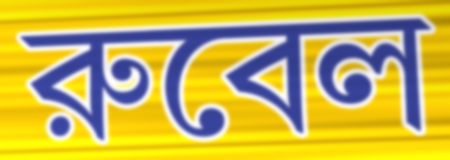
রুবেল